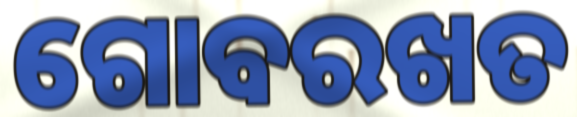
ଗୋବରଖତ